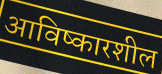
आविष्कारशील